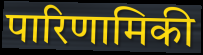
पारिणामिकी